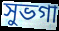
সুভগা